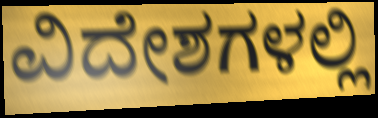
ವಿದೇಶಗಳಲ್ಲಿ